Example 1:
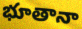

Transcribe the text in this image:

భూతానా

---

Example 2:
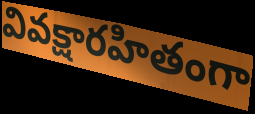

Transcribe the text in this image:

వివక్షారహితంగా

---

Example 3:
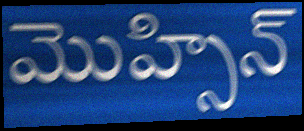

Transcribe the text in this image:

మొహ్సిన్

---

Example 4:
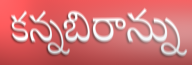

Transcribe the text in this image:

కన్నబిరాన్ను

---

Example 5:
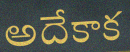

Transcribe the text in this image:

అదేకాక